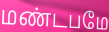
மண்டபமே